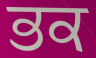
ਭਕ